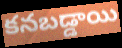
కనబడ్డాయి